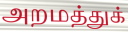
அறமத்துக்